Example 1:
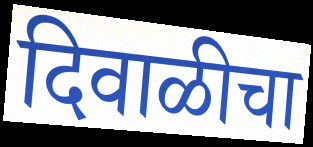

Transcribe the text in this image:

दिवाळीचा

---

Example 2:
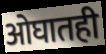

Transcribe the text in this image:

ओघातही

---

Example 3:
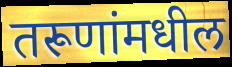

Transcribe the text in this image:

तरूणांमधील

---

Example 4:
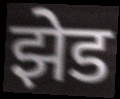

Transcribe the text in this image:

झेड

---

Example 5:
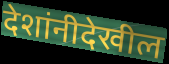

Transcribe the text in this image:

देशांनीदेखील